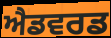
ਐਡਵਰਡ